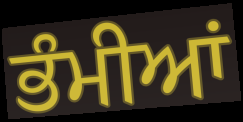
ਭੰਮੀਆਂ